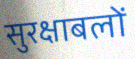
सुरक्षाबलों